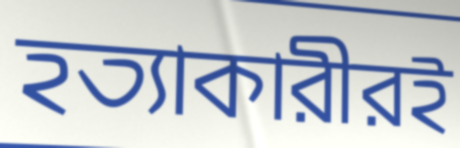
হত্যাকারীরই